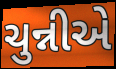
ચુન્નીએ